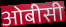
ओबीसी